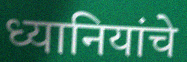
ध्यानियांचे